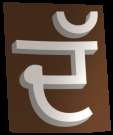
ਦੱ